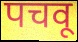
पचवू